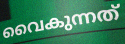
വൈകുന്നത്